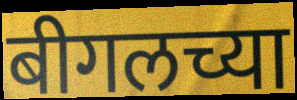
बीगलच्या